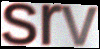
srv